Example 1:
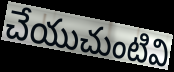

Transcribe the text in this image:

చేయుచుంటివి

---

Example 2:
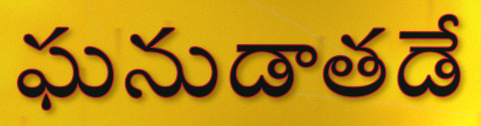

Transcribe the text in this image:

ఘనుడాతడే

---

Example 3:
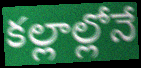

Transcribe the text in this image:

కల్లాల్లోనే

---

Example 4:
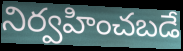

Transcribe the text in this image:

నిర్వహించబడే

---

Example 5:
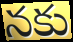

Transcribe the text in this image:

నకు